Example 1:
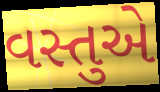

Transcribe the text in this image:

વસ્તુએ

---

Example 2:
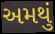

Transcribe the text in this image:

અમથું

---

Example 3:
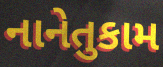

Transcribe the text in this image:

નાનેતુકામ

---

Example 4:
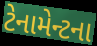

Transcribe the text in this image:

ટેનામેન્ટના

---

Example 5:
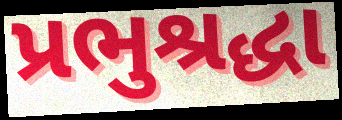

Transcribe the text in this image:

પ્રભુશ્રદ્ધા